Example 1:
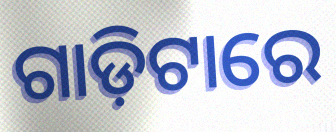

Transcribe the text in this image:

ଗାଡ଼ିଟାରେ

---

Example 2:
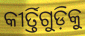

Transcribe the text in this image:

କୀର୍ତ୍ତିଗୁଡ଼ିକୁ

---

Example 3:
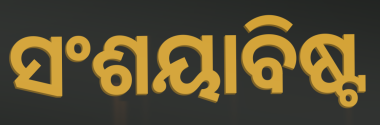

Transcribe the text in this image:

ସଂଶୟାବିଷ୍ଟ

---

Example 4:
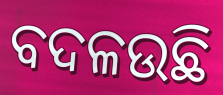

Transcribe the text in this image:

ବଦଳଉଛି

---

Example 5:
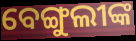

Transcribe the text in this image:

ବେଙ୍ଗୁଲୀଙ୍କ